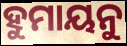
ହୁମାୟନୁ